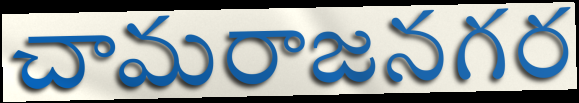
చామరాజనగర